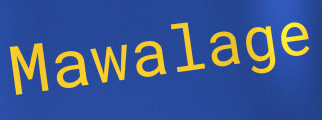
Mawalage